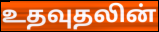
உதவுதலின்